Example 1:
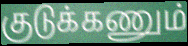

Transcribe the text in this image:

குடுக்கணும்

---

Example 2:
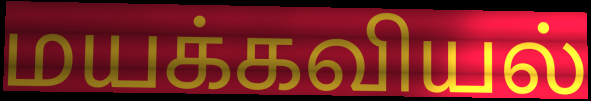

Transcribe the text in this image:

மயக்கவியல்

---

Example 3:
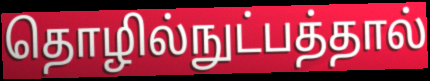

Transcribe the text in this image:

தொழில்நுட்பத்தால்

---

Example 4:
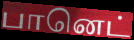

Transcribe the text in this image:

பானெட்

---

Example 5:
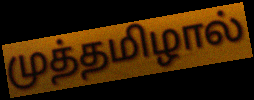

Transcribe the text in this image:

முத்தமிழால்